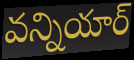
వన్నియార్